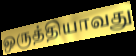
ஒருத்தியாவது